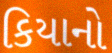
કિયાનો